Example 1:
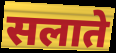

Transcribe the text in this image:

सलाते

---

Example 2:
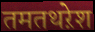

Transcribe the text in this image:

तमतथऱेश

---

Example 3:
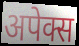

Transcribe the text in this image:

अपेक्स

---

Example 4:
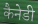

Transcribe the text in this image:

कैनेडी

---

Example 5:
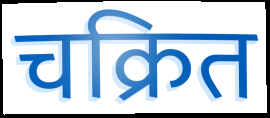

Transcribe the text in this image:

चक्रित